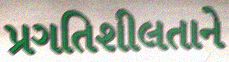
પ્રગતિશીલતાને